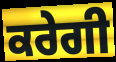
ਕਰੇਗੀ